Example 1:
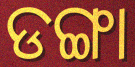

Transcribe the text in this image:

ଡଙ୍ଗା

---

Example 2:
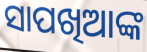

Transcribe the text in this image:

ସାପଖିଆଙ୍କ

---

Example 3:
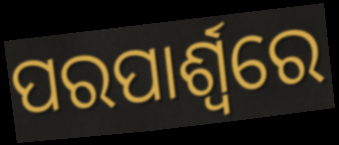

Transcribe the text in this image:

ପରପାର୍ଶ୍ୱରେ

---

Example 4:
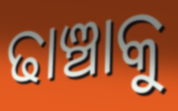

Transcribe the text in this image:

ଢାଞ୍ଚାକୁ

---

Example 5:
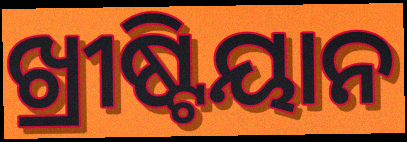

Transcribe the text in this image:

ଖ୍ରୀଷ୍ଟିୟାନ